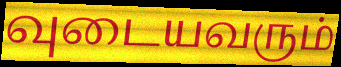
வுடையவரும்